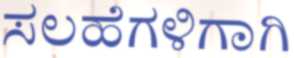
ಸಲಹೆಗಳಿಗಾಗಿ